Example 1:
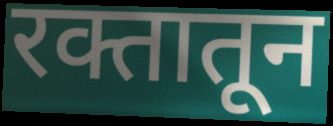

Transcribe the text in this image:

रक्तातून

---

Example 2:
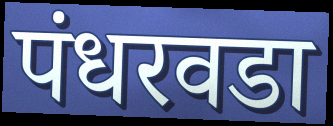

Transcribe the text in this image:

पंधरवडा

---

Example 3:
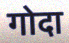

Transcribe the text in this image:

गोदा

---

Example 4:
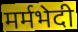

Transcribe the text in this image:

मर्मभेदी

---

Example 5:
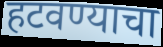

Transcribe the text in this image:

हटवण्याचा